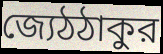
জ্যেঠঠাকুর